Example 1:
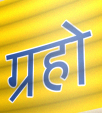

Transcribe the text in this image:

ग्रहो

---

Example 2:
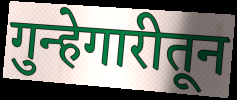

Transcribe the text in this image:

गुन्हेगारीतून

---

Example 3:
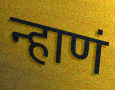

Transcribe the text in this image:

न्हाणं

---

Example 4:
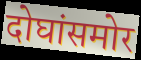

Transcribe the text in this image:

दोघांसमोर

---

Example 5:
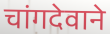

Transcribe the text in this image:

चांगदेवाने